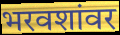
भरवशांवर